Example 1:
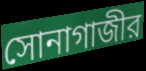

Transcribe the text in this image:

সোনাগাজীর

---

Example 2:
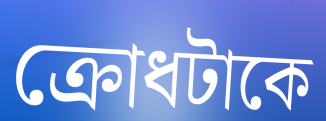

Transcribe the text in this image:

ক্রোধটাকে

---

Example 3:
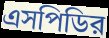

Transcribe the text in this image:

এসপিডির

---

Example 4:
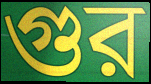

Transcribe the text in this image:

গুর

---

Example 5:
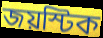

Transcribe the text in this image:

জয়স্টিক